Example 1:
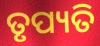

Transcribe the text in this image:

ତୃପ୍ୟତି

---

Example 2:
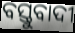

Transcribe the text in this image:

ବସ୍ତୁବାଦୀ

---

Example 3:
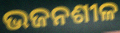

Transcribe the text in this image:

ଭଜନଶୀଳ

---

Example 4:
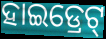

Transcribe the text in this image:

ହାଇଡ୍ରେଟ୍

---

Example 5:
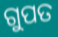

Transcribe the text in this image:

ଗୁପତ